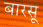
बारसू